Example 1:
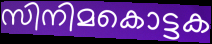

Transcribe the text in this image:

സിനിമകൊട്ടക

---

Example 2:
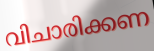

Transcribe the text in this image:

വിചാരിക്കണ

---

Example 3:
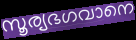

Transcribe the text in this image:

സൂര്യഭഗവാനെ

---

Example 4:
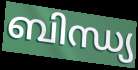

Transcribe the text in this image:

ബിന്ധ്യ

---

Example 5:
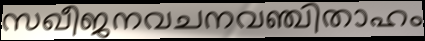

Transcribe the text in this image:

സഖീജനവചനവഞ്ചിതാഹം